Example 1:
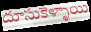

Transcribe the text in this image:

దూసుకెళ్ళాయి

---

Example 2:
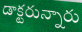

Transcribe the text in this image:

డాక్టరున్నారు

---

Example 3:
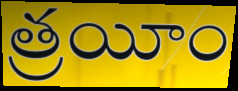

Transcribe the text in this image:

త్రయీం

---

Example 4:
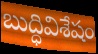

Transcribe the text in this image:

బుద్ధివిశేషం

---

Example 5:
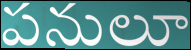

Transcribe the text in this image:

పనులూ